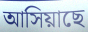
আসিয়াছে